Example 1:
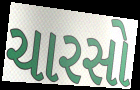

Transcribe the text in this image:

ચારસો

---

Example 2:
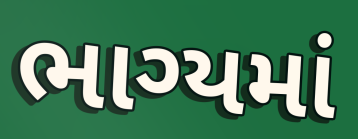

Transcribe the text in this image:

ભાગ્યમાં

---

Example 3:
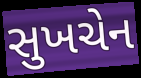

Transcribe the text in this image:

સુખચેન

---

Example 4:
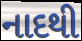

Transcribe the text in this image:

નાદથી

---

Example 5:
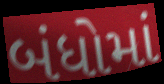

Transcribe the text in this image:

બંધોમાં